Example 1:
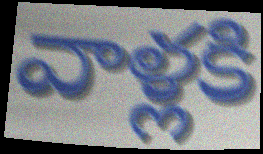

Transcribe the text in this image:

వాళ్లకి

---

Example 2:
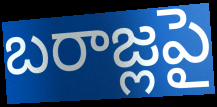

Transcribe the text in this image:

బరాజ్లపై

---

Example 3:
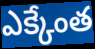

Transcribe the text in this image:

ఎక్కేంత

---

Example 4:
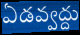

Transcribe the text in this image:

ఏడవ్వద్దు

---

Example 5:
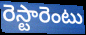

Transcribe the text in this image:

రెస్టారెంటు